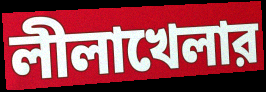
লীলাখেলার